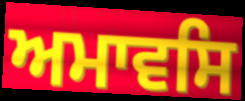
ਅਮਾਵਸਿ